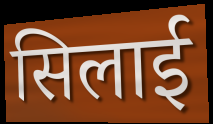
सिलाई